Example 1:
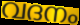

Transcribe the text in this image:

വദനം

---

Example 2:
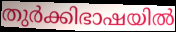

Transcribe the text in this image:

തുർക്കിഭാഷയിൽ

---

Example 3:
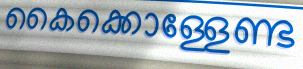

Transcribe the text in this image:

കൈക്കൊള്ളേണ്ട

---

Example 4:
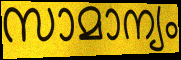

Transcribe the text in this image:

സാമാന്യം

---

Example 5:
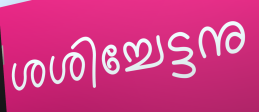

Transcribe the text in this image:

ശശിച്ചേട്ടനു